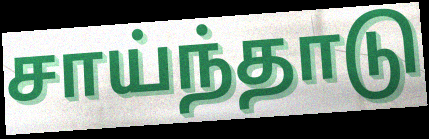
சாய்ந்தாடு